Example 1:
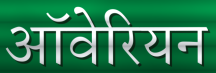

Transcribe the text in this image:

ऑवेरियन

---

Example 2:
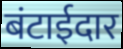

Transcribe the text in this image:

बंटाईदार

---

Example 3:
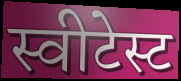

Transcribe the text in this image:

स्वीटेस्ट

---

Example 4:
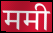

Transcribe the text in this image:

ममी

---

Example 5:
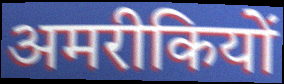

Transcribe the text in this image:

अमरीकियों